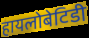
हायलोबेटिडी